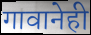
गावानेही